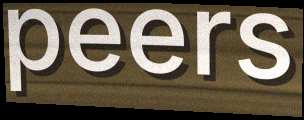
peers